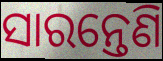
ସାରନ୍ତେଣି